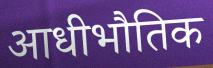
आधीभौतिक